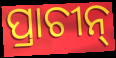
ପ୍ରାଚୀନ୍